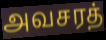
அவசரத்